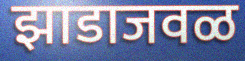
झाडाजवळ